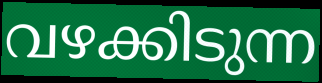
വഴക്കിടുന്ന